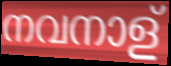
നവനാള്